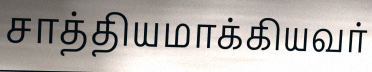
சாத்தியமாக்கியவர்